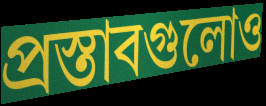
প্রস্তাবগুলোও